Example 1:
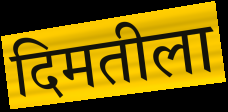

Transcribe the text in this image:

दिमतीला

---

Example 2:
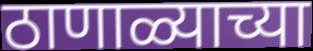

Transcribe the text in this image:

ठाणाळ्याच्या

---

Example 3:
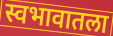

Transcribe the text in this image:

स्वभावातला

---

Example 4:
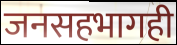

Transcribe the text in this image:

जनसहभागही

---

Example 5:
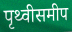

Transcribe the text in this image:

पृथ्वीसमीप